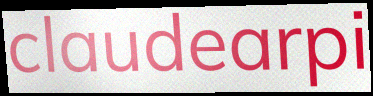
claudearpi